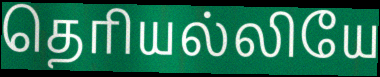
தெரியல்லியே